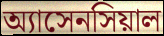
অ্যাসেনসিয়াল